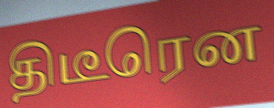
திடீரென